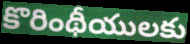
కొరింథీయులకు